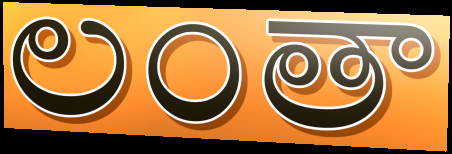
లంతా